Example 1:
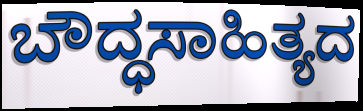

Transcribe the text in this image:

ಬೌದ್ಧಸಾಹಿತ್ಯದ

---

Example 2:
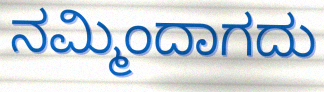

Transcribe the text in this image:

ನಮ್ಮಿಂದಾಗದು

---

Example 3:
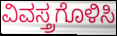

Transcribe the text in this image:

ವಿವಸ್ತ್ರಗೊಳಿಸಿ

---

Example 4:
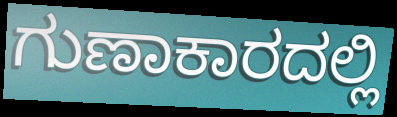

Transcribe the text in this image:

ಗುಣಾಕಾರದಲ್ಲಿ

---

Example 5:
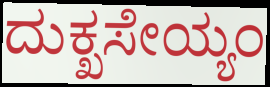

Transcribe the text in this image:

ದುಕ್ಖಸೇಯ್ಯಂ